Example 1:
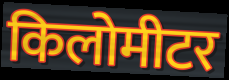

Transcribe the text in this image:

किलोमीटर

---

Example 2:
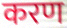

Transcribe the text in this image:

करण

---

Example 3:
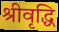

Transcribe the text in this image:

श्रीवृद्धि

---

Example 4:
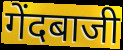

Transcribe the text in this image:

गेंदबाजी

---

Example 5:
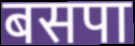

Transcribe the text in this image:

बसपा